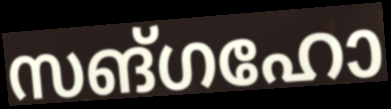
സങ്ഗഹോ